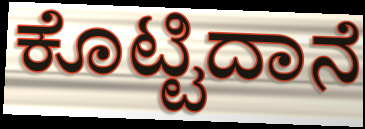
ಕೊಟ್ಟಿದಾನೆ